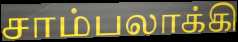
சாம்பலாக்கி